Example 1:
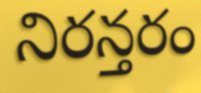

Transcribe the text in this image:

నిరన్తరం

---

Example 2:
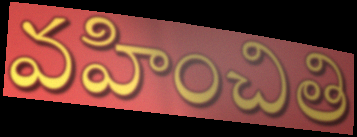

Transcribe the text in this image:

వహించితి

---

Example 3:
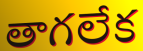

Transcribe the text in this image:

తాగలేక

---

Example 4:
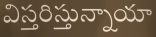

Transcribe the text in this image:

విస్తరిస్తున్నాయా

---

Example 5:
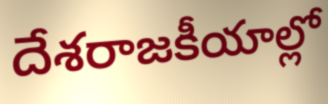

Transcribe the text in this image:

దేశరాజకీయాల్లో